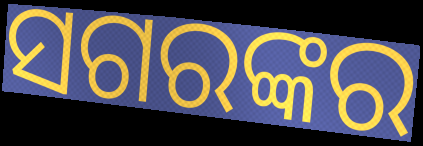
ସଗରଙ୍କର